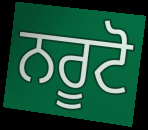
ਨਰੂਟੋ